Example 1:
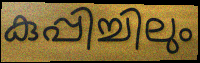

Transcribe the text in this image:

കുപ്പിച്ചിലും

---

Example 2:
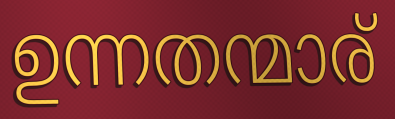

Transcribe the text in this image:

ഉന്നതന്മാര്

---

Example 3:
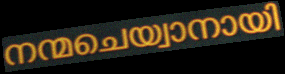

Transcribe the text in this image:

നന്മചെയ്വാനായി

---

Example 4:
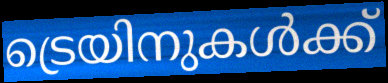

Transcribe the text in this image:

ട്രെയിനുകൾക്ക്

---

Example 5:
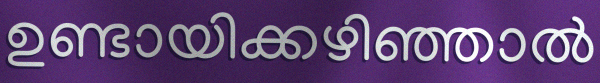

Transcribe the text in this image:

ഉണ്ടായിക്കഴിഞ്ഞാൽ